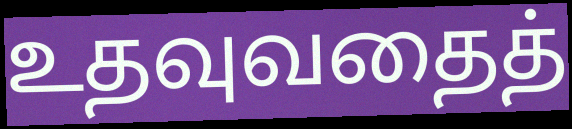
உதவுவதைத்